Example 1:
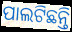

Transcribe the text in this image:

ପାଲଟିଛନ୍ତି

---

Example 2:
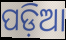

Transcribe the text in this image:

ପଡ଼ିଆ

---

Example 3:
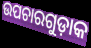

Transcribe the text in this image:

ଉପଚାରଗୁଡ଼ାକ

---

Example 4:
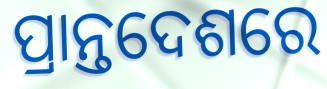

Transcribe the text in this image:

ପ୍ରାନ୍ତଦେଶରେ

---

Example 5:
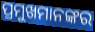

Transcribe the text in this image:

ପ୍ରମୁଖମାନଙ୍କର